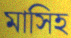
মাসিহ